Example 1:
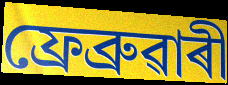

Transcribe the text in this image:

ফ্ৰেব্ৰুৱাৰী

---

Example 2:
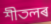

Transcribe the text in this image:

শীতলৰ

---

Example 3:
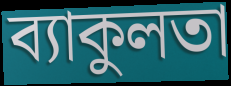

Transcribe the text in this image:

ব্যাকুলতা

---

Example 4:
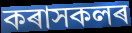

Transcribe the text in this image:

কৰাসকলৰ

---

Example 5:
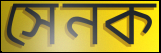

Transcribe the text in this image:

সেনক